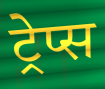
ट्रेप्स